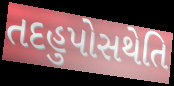
તદહુપોસથેતિ